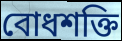
বোধশক্তি